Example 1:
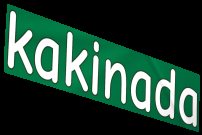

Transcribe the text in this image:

kakinada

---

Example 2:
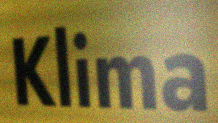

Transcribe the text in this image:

Klima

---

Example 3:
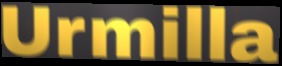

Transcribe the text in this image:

Urmilla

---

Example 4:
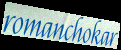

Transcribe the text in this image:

romanchokar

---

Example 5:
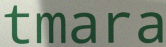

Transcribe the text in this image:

tmara